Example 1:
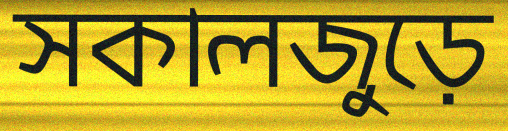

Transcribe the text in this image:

সকালজুড়ে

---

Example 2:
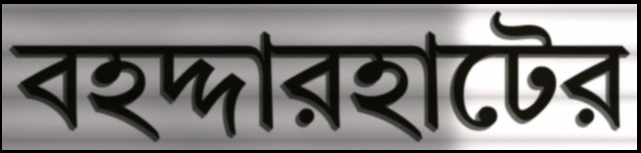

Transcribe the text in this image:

বহদ্দারহাটের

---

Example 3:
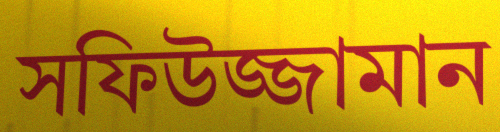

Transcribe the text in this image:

সফিউজ্জামান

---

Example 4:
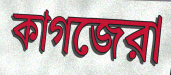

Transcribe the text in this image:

কাগজেরা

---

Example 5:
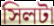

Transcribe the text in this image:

সিলটা